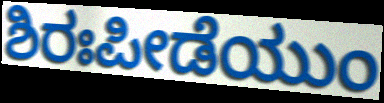
ಶಿರಃಪೀಡೆಯುಂ